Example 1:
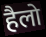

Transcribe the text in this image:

हैलो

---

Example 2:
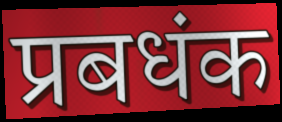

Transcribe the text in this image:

प्रबधंक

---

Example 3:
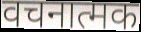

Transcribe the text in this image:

वचनात्मक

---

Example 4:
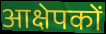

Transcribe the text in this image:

आक्षेपकों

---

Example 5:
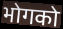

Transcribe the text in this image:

भोगको